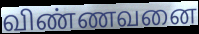
விண்ணவனை